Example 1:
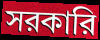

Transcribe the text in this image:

সরকারি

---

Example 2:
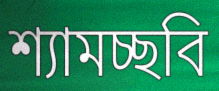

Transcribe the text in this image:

শ্যামচ্ছবি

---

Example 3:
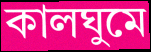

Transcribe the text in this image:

কালঘুমে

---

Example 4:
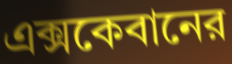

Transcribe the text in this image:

এক্সকেবানের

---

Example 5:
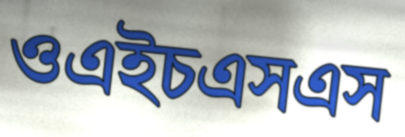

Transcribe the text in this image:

ওএইচএসএস